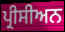
ਪ੍ਰੀਸੀਅਨ